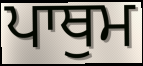
ਪਾਥੁਮ